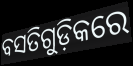
ବସତିଗୁଡ଼ିକରେ